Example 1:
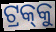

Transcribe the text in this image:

ଟ୍ରକ୍‍କୁ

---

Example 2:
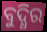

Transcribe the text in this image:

ବୁଦ୍ଧିର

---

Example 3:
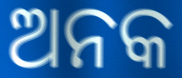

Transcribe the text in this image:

ଅନକ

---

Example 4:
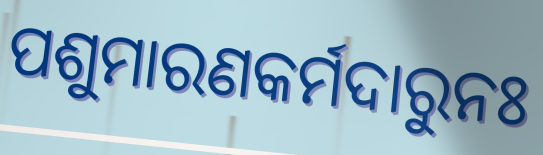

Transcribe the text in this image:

ପଶୁମାରଣକର୍ମଦାରୁନଃ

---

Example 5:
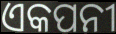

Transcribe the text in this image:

ଏକପନୀ